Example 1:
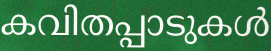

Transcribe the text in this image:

കവിതപ്പാടുകൾ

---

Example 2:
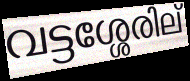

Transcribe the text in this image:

വട്ടശ്ശേരില്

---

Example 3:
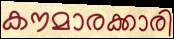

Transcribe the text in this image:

കൗമാരക്കാരി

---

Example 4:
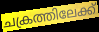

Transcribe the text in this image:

ചക്രത്തിലേക്ക്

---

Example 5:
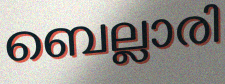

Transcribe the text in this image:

ബെല്ലാരി